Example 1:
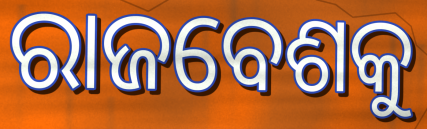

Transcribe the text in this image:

ରାଜବେଶକୁ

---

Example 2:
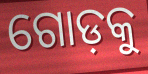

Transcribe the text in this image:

ଗୋଡ଼କୁ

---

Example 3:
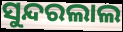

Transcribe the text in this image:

ସୁନ୍ଦରଲାଲ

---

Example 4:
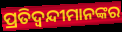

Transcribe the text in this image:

ପ୍ରତିଦ୍ୱନ୍ଦୀମାନଙ୍କର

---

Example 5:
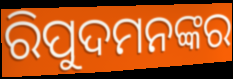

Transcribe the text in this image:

ରିପୁଦମନଙ୍କର